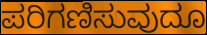
ಪರಿಗಣಿಸುವುದೂ